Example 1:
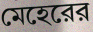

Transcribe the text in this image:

মেহেরের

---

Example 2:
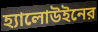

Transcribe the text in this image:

হ্যালোউইনের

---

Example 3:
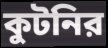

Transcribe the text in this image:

কুটনির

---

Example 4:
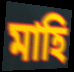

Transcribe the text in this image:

মাহি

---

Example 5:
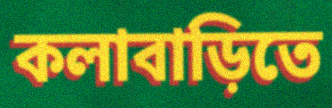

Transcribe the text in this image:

কলাবাড়িতে